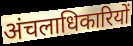
अंचलाधिकारियों